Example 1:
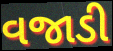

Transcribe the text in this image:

વજાડી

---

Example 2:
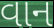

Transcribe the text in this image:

વાન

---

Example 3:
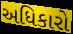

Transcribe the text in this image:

અધિકારો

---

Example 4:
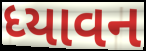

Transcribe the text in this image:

ધ્યાવન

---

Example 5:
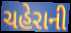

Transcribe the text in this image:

ચહેરાની